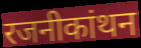
रजनीकांथन